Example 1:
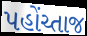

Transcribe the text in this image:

પહોંચ્તાજ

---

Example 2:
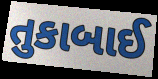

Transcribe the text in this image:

તુકાબાઈ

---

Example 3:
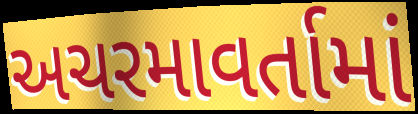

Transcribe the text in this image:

અચરમાવર્તામાં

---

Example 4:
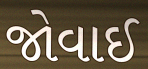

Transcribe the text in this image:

જોવાઈ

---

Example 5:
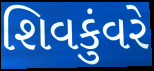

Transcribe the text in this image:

શિવકુંવરે